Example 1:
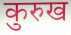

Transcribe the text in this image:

कुरुख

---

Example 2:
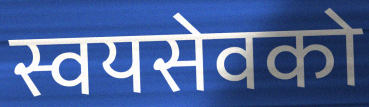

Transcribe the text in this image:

स्वयसेवको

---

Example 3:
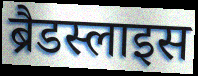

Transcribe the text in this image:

ब्रैडस्लाइस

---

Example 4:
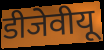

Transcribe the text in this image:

डीजेवीयू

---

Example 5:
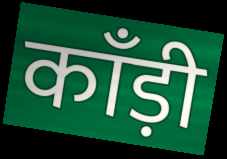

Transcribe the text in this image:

काँड़ी